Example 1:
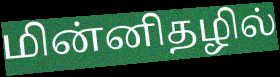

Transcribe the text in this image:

மின்னிதழில்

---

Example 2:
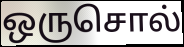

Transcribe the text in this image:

ஒருசொல்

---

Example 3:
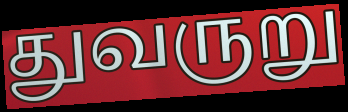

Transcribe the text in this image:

துவருறு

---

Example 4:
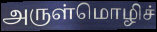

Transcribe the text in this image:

அருள்மொழிச்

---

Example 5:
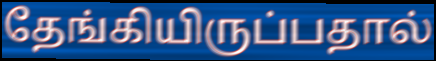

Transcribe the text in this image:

தேங்கியிருப்பதால்